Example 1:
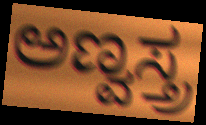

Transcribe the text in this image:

ಅಣ್ವಸ್ತ್ರ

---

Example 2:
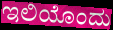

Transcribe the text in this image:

ಇಲಿಯೊಂದು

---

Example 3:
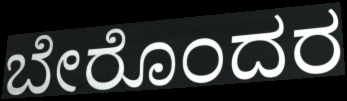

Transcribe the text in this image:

ಬೇರೊಂದರ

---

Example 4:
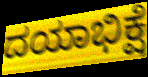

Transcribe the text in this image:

ದಯಾಭಿಕ್ಷೆ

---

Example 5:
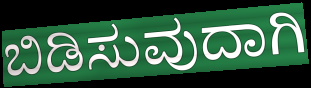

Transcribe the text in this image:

ಬಿಡಿಸುವುದಾಗಿ